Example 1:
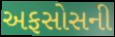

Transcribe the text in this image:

અફસોસની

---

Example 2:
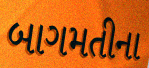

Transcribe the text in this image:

બાગમતીના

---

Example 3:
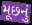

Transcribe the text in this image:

મૂછનું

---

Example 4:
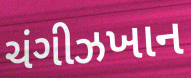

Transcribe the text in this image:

ચંગીઝખાન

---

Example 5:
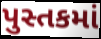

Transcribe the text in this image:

પુસ્તકમાં